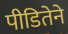
पीडितेने